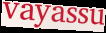
vayassu